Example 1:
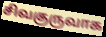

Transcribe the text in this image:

சிவகுருவாக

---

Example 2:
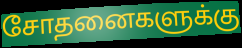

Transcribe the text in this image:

சோதனைகளுக்கு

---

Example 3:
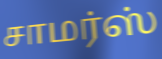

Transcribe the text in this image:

சாமர்ஸ்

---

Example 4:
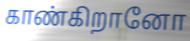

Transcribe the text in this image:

காண்கிறானோ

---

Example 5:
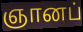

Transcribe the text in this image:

ஞானப்